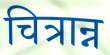
चित्रान्न